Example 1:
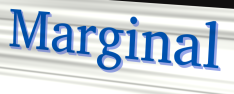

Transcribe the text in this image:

Marginal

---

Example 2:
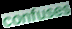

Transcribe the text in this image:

confuses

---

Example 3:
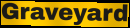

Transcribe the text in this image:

Graveyard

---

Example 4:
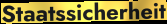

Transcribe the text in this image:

Staatssicherheit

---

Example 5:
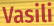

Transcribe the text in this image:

Vasili